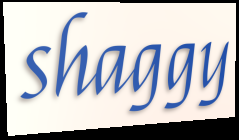
shaggy